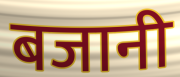
बजानी